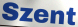
Szent